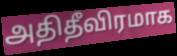
அதிதீவிரமாக